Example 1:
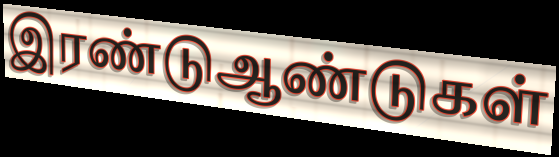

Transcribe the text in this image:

இரண்டுஆண்டுகள்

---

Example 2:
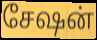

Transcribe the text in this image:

சேஷன்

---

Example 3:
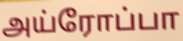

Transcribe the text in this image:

அய்ரோப்பா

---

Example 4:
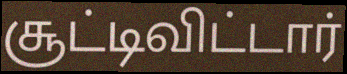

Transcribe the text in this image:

சூட்டிவிட்டார்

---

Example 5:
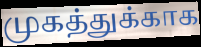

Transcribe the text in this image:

முகத்துக்காக